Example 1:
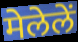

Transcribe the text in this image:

मेलेलें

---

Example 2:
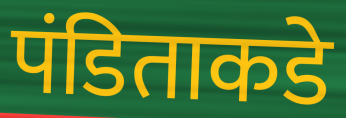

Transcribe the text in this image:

पंडिताकडे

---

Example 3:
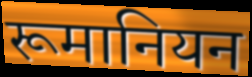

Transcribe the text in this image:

रूमानियन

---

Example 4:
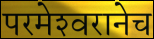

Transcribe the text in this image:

परमेश्वरानेच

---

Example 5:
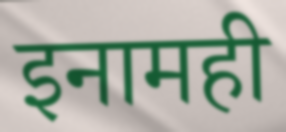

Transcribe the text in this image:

इनामही